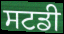
ਸਟਡੀ